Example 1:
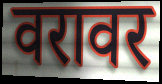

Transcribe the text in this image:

वरावर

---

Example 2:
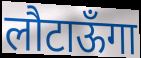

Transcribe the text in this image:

लौटाऊँगा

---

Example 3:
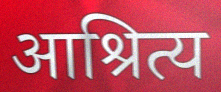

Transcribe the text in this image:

आश्रित्य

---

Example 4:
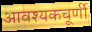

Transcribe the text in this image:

आवश्यकचूर्णी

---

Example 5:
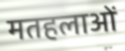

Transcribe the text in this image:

मतहलाओं